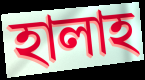
হালাহ